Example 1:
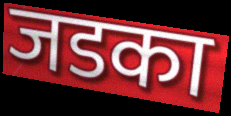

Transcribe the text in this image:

जडका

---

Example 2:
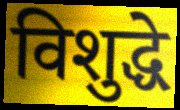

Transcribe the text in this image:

विशुद्धे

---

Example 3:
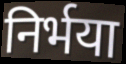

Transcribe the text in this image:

निर्भया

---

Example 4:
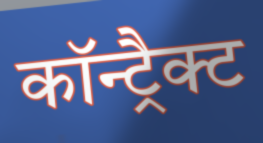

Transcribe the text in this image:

कॉन्‍ट्रैक्‍ट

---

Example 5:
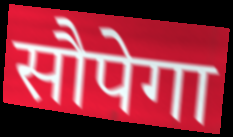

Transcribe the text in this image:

सौपेगा